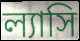
ল্যাসি